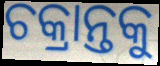
ଚକ୍ରାନ୍ତକୁ